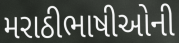
મરાઠીભાષીઓની